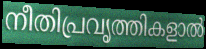
നീതിപ്രവൃത്തികളാൽ